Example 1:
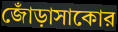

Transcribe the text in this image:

জোঁড়াসাকোর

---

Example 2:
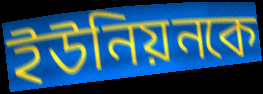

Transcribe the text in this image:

ইউনিয়নকে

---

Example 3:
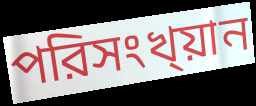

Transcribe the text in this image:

পরিসংখ্য়ান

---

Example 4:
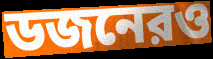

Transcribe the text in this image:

ডজনেরও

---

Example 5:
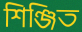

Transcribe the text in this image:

শিঞ্জিত